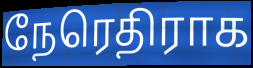
நேரெதிராக